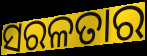
ସରଳତାର